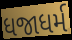
ધજાધર્મ